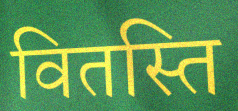
वितस्ति